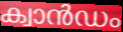
ക്വാൻഡം